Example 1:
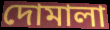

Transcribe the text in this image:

দোমালা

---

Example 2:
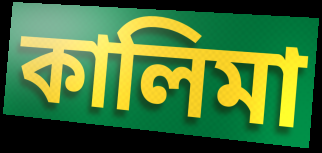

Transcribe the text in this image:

কালিমা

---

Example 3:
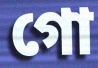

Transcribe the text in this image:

গো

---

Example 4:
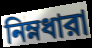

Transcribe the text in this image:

নিম্নধারা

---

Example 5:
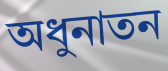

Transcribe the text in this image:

অধুনাতন